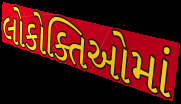
લોકોક્તિઓમાં